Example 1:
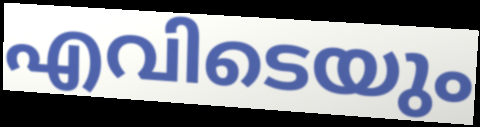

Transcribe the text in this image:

എവിടെയും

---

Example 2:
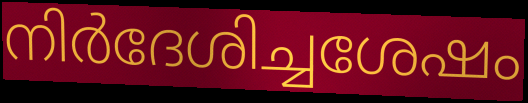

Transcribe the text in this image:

നിർദേശിച്ചശേഷം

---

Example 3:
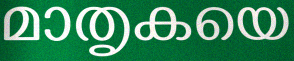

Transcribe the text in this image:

മാതൃകയെ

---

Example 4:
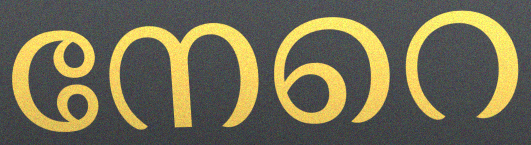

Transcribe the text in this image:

നേറെ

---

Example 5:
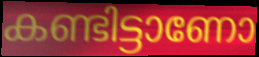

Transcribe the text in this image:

കണ്ടിട്ടാണോ